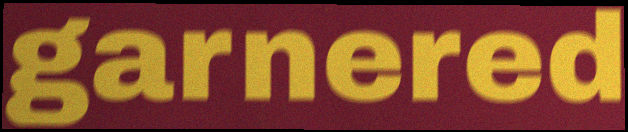
garnered